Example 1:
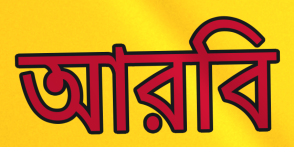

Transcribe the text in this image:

আরবি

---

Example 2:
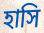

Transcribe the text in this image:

হাসি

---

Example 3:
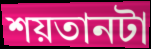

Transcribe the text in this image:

শয়তানটা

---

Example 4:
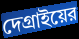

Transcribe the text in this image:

দেগ্রাইয়ের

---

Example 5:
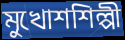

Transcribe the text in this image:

মুখোশশিল্পী